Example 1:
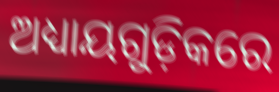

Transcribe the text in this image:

ଅଧ୍ୟାୟଗୁଡ଼ିକରେ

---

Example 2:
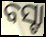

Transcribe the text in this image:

ବସ୍ଟା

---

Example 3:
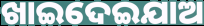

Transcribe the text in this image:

ଖାଇଦେଇଯାଅ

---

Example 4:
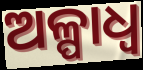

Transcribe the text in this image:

ଅଳ୍ପାଧ୍ଵ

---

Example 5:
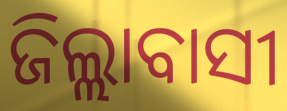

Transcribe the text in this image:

ଜିଲ୍ଲାବାସୀ